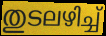
തുടലഴിച്ച്